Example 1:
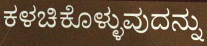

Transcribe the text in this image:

ಕಳಚಿಕೊಳ್ಳುವುದನ್ನು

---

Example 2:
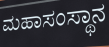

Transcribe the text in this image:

ಮಹಾಸಂಸ್ಥಾನ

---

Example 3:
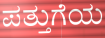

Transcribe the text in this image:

ಪತ್ತುಗೆಯ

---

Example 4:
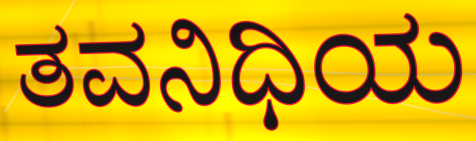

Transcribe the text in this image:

ತವನಿಧಿಯ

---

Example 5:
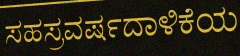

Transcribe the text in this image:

ಸಹಸ್ರವರ್ಷದಾಳಿಕೆಯ